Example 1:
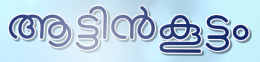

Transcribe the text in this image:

ആട്ടിൻകൂട്ടം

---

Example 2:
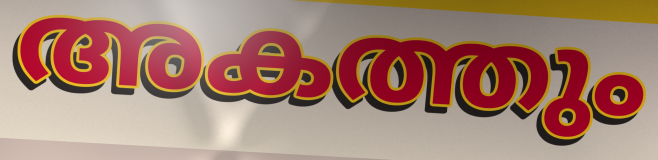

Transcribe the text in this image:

അകത്തും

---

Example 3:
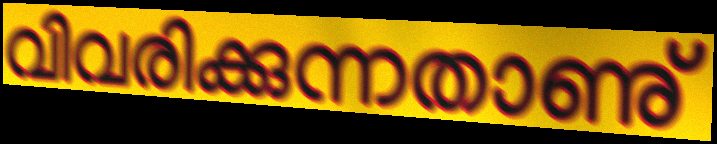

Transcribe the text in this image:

വിവരിക്കുന്നതാണു്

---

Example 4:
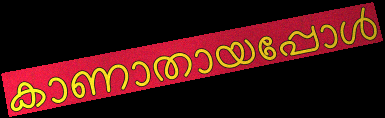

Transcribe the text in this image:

കാണാതായപ്പോൾ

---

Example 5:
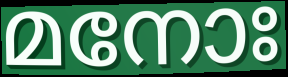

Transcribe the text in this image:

മനോഃ